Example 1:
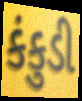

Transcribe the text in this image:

કંકુડી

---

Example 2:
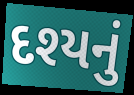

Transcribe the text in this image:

દશ્યનું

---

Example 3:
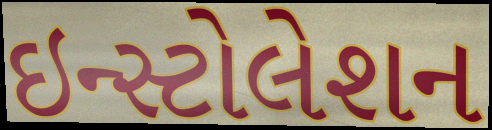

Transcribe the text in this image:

ઇન્સ્ટોલેશન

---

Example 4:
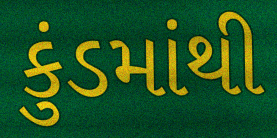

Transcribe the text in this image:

કુંડમાંથી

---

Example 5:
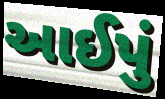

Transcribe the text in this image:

આઈપું